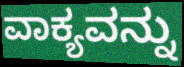
ವಾಕ್ಯವನ್ನು